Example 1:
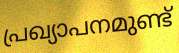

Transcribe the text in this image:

പ്രഖ്യാപനമുണ്ട്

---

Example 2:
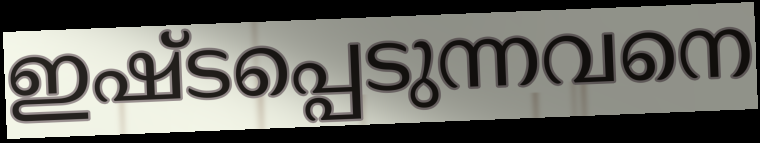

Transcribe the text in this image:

ഇഷ്ടപ്പെടുന്നവനെ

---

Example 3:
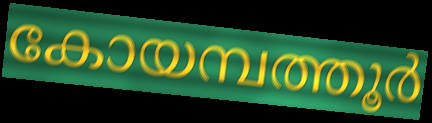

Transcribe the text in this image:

കോയമ്പത്തൂർ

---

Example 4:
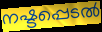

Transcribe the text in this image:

നഷ്ടപ്പെടൽ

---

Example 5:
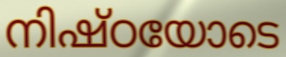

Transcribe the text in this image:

നിഷ്ഠയോടെ